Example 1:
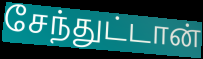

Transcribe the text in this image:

சேந்துட்டான்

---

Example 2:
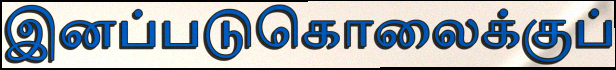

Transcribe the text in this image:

இனப்படுகொலைக்குப்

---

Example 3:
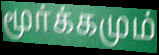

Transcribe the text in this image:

மூர்க்கமும்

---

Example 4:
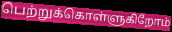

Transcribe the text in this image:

பெற்றுக்கொள்ளுகிறோம்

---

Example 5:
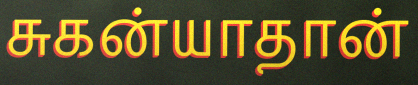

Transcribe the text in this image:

சுகன்யாதான்